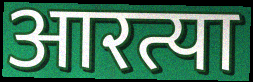
आरत्या